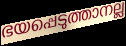
ഭയപ്പെടുത്താനല്ല